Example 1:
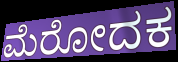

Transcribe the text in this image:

ಮೆರೋದಕ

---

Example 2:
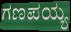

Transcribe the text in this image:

ಗಣಪಯ್ಯ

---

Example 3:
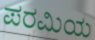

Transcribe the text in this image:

ಪರಮಿಯ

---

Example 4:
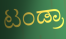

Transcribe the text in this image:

ಟಂಡ್ರಾ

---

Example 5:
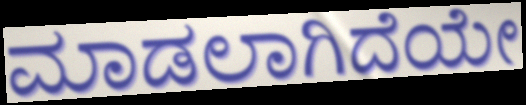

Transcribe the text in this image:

ಮಾಡಲಾಗಿದೆಯೇ